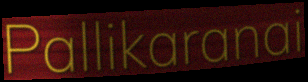
Pallikaranai